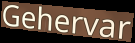
Gehervar